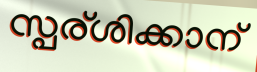
സ്പര്ശിക്കാന്